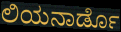
ಲಿಯನಾರ್ಡೊ